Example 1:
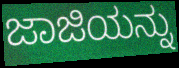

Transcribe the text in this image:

ಜಾಜಿಯನ್ನು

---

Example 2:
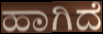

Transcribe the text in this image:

ಹಾಗಿದೆ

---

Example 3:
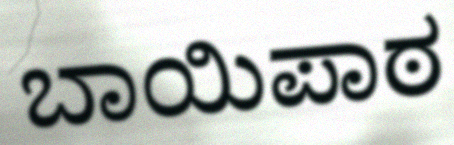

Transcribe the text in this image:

ಬಾಯಿಪಾಠ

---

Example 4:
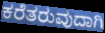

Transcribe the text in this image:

ಕರೆತರುವುದಾಗಿ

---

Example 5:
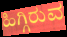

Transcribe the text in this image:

ಹಿಗ್ಗಿರುವ